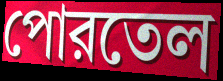
পোরতেল